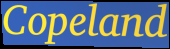
Copeland